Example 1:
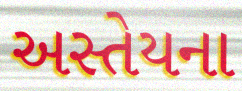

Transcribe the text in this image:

અસ્તેયના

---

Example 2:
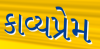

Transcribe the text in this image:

કાવ્યપ્રેમ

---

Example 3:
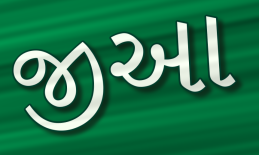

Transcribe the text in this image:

જીઆ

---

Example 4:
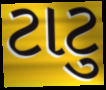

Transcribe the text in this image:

ટાટુ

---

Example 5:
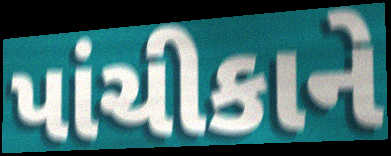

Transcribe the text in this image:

પાંચીકાને